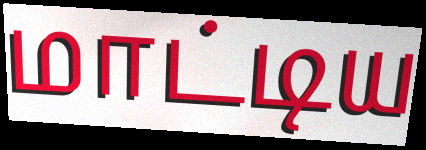
மாட்டிய